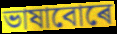
ভাষাবোৰে